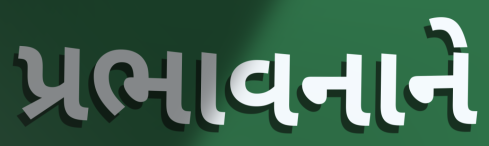
પ્રભાવનાને